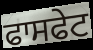
ਫਾਸਫੇਟ